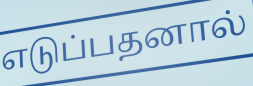
எடுப்பதனால்